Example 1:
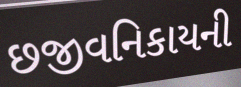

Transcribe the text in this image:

છજીવનિકાયની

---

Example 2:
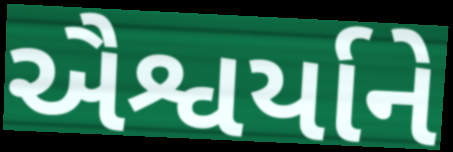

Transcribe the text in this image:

ઐશ્વર્યાને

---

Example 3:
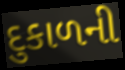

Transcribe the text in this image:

દુકાળની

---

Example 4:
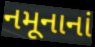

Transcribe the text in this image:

નમૂનાનાં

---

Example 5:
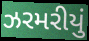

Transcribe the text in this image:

ઝરમરીયું